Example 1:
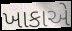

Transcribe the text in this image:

ખાકાએ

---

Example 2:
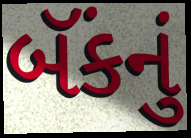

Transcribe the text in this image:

બૅંકનું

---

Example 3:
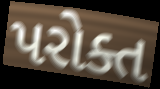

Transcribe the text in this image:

પરોક્ત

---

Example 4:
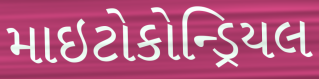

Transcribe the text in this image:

માઇટોકોન્ડ્રિયલ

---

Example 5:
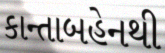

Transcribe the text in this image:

કાન્તાબહેનથી